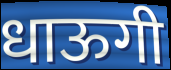
धाऊगी